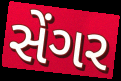
સેંગર